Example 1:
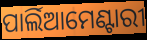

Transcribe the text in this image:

ପାର୍ଲିଆମେଣ୍ଟାରୀ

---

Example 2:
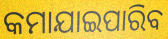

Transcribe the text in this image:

କମାଯାଇପାରିବ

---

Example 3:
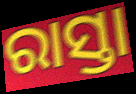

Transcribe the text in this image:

ରାସ୍ତା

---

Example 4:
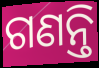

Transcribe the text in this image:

ଗଣନ୍ତି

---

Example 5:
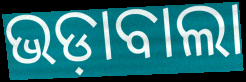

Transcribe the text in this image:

ଭଡ଼ାବାଲା